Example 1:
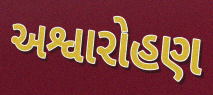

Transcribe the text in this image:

અશ્વારોહણ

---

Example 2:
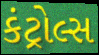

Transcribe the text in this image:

કંટ્રોલ્સ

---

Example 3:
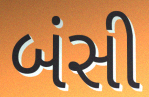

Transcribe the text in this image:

બંસી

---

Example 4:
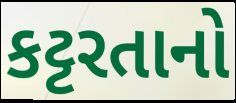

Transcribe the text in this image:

કટ્ટરતાનો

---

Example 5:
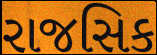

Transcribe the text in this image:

રાજસિક